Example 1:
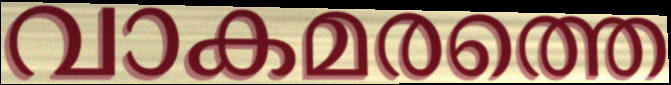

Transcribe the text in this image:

വാകമരത്തെ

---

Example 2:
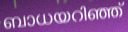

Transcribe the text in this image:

ബാധയറിഞ്ഞ്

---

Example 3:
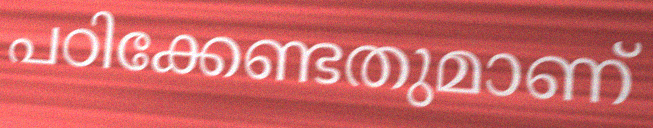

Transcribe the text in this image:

പഠിക്കേണ്ടതുമാണ്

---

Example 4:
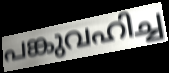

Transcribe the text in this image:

പങ്കുവഹിച്ച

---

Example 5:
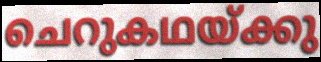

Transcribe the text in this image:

ചെറുകഥയ്ക്കു